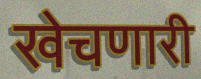
खेचणारी